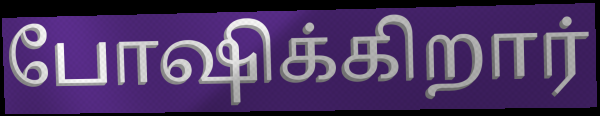
போஷிக்கிறார்